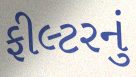
ફીલ્ટરનું